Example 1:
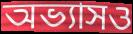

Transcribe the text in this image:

অভ্যাসও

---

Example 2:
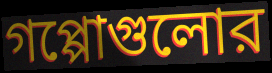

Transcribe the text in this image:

গপ্পোগুলোর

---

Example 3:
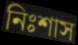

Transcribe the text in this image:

নিঃশাস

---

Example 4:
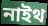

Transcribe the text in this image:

নাইথ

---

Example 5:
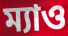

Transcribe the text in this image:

ম্যাও